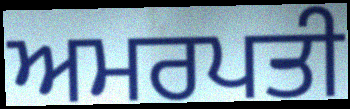
ਅਮਰਪਤੀ